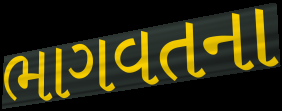
ભાગવતના